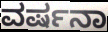
ವರ್ಷನಾ